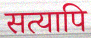
सत्यापि